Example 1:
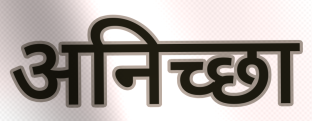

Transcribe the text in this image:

अनिच्छा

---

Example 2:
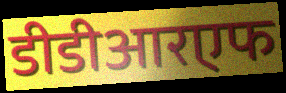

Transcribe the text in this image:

डीडीआरएफ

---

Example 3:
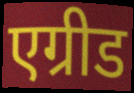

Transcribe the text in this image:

एग्रीड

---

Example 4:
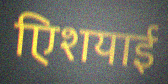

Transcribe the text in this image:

एिशयाई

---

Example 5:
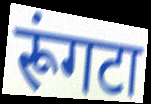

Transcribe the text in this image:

रूंगटा